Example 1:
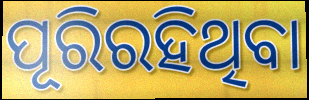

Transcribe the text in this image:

ପୂରିରହିଥିବା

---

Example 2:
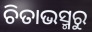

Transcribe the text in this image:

ଚିତାଭସ୍ମରୁ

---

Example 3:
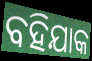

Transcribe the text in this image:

ବହିଯାକ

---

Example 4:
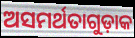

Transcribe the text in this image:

ଅସମର୍ଥତାଗୁଡ଼ାକ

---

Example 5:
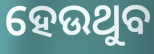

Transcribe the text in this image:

ହେଉଥୁବ